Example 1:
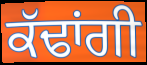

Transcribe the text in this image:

ਕੱਢਾਂਗੀ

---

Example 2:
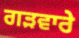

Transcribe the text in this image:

ਗੜਵਾਰੇ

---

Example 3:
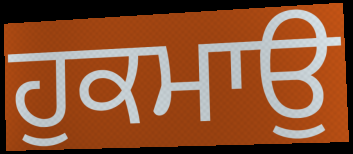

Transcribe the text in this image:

ਹੁਕਮਾਉ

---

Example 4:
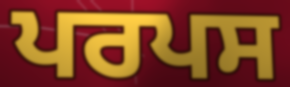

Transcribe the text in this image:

ਪਰਪਸ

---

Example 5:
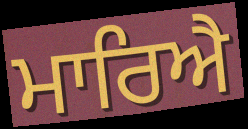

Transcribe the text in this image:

ਮਾਰਿਐ